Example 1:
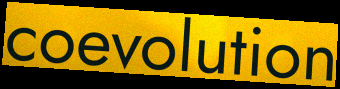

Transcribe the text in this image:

coevolution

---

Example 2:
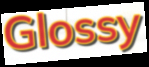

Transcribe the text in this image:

Glossy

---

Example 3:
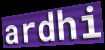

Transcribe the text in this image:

ardhi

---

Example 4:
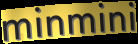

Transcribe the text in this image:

minmini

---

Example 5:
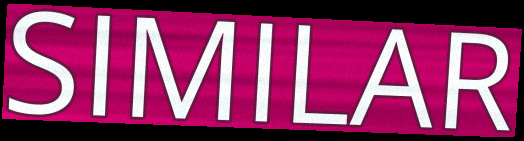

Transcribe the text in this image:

SIMILAR